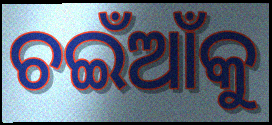
ଚଇଁଆଁକୁ